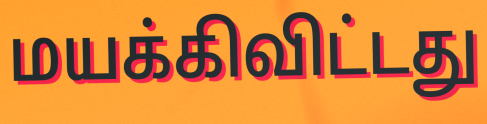
மயக்கிவிட்டது